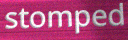
stomped